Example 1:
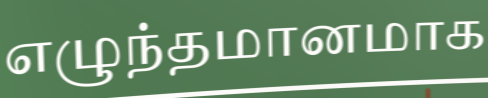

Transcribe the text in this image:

எழுந்தமானமாக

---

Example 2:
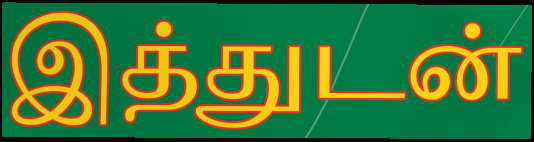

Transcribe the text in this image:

இத்துடன்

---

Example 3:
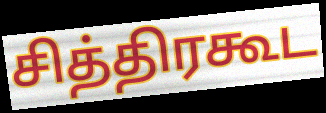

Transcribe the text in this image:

சித்திரகூட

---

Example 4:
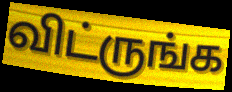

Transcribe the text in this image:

விட்ருங்க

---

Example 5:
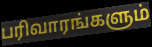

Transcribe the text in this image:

பரிவாரங்களும்